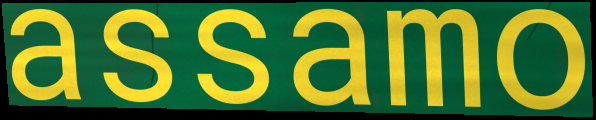
assamo